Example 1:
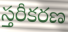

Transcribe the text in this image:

స్తరీకరణ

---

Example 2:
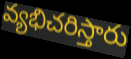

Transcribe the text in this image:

వ్యభిచరిస్తారు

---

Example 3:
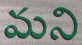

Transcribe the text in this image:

మని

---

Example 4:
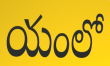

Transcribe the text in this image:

యంలో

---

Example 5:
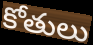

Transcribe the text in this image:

కోతులు